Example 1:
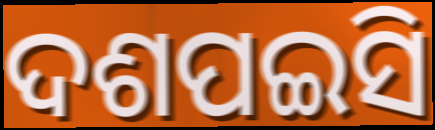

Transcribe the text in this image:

ଦଶପଇସି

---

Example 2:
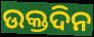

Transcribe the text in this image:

ଉକ୍ତଦିନ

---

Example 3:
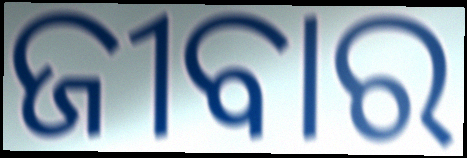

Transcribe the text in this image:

ଜୀବାର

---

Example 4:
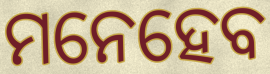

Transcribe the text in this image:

ମନେହେବ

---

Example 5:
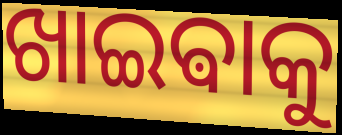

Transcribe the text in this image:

ଖାଇଵାକୁ